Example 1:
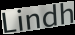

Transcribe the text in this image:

Lindh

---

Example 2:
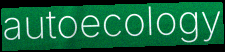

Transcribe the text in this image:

autoecology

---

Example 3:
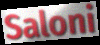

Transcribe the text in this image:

Saloni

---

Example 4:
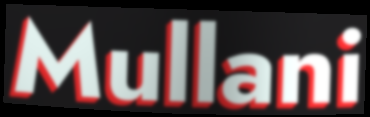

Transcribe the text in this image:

Mullani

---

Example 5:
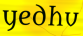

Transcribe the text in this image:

yedhu